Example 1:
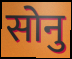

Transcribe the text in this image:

सोनु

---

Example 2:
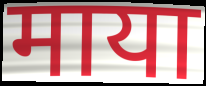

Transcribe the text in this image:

माया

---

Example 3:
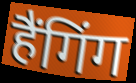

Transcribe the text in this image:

हैंगिंग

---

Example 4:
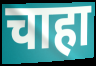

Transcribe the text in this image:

चाहा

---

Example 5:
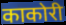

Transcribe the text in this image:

काकोरी